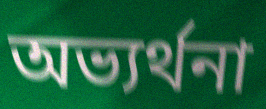
অভ্যর্থনা